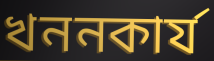
খননকার্য